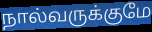
நால்வருக்குமே